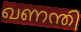
ഖണന്തി